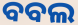
ବବଲ